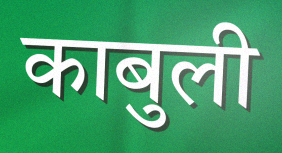
काबुली